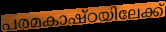
പരമകാഷ്ഠയിലേക്ക്